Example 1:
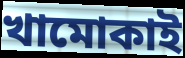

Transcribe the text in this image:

খামোকাই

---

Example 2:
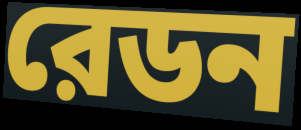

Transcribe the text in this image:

রেডন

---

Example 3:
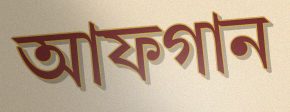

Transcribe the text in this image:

আফগান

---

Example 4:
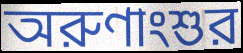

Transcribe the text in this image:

অরুণাংশুর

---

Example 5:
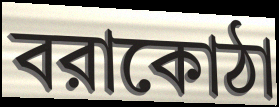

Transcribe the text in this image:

বরাকোঠা